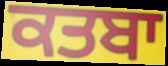
ਕਤਬਾ